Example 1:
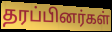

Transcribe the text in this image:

தரப்பினர்கள்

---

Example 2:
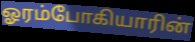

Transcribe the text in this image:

ஓரம்போகியாரின்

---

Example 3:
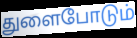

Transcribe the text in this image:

துளைபோடும்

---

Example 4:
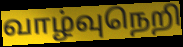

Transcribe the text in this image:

வாழ்வுநெறி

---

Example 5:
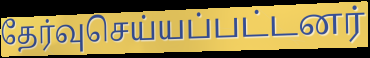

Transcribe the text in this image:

தேர்வுசெய்யப்பட்டனர்